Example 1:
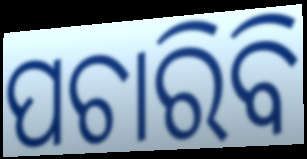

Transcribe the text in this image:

ପଚାରିବି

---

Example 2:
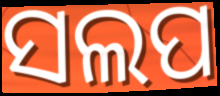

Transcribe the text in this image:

ସଲପ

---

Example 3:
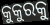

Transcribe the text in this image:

କୁକୁରକୁ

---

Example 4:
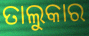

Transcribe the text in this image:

ତାଲୁକାର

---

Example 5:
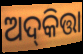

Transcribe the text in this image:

ଅଦ୍‌କିତ୍ତା